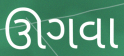
ઊગવા